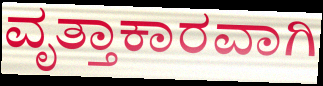
ವೃತ್ತಾಕಾರವಾಗಿ